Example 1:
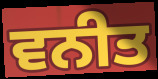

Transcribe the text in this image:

ਵਨੀਤ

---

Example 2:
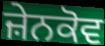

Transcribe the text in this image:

ਜ਼ੇਨਕੋਵ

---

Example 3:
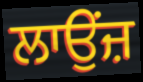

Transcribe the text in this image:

ਲਾਉਂਜ਼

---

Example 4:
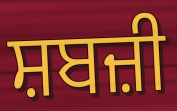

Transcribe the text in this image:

ਸ਼ਬਜ਼ੀ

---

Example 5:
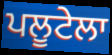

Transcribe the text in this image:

ਪਲੂਟੇਲਾ